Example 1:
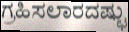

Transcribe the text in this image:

ಗ್ರಹಿಸಲಾರದಷ್ಟು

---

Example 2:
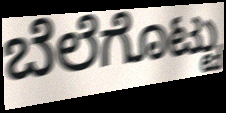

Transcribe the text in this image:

ಬೆಲೆಗೊಟ್ಟು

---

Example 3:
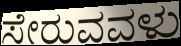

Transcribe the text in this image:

ಸೇರುವವಳು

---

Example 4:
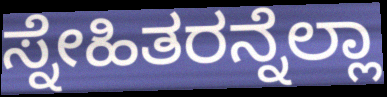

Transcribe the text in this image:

ಸ್ನೇಹಿತರನ್ನೆಲ್ಲಾ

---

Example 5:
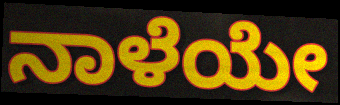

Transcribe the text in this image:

ನಾಳೆಯೇ